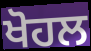
ਖੋਹਲ